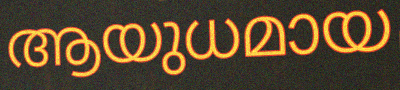
ആയുധമായ